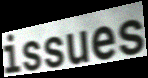
issues